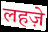
लहज़े